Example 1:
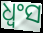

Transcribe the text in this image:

ଧ୍ୱଂସ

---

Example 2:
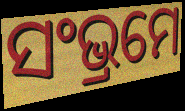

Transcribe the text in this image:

ସଂଭ୍ରମେ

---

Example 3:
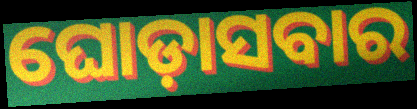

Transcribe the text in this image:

ଘୋଡ଼ାସବାର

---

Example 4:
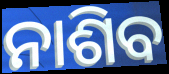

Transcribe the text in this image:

ନାଶିବ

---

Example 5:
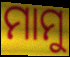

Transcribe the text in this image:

ମାମୁ